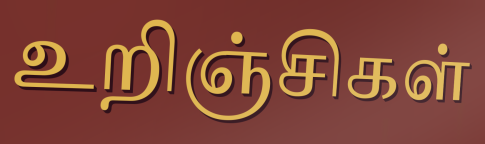
உறிஞ்சிகள்